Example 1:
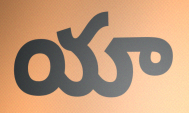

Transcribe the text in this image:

యా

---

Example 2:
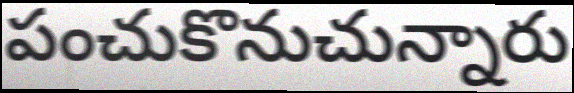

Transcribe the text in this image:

పంచుకొనుచున్నారు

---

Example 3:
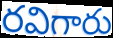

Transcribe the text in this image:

రవిగారు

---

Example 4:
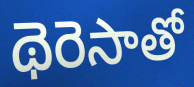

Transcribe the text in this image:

థెరెసాతో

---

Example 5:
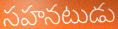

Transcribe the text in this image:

సహనటుడు